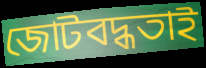
জোটবদ্ধতাই